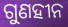
ଗୁଣହୀନ